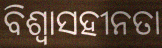
ବିଶ୍ୱାସହୀନତା